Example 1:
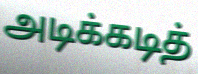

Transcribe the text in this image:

அடிக்கடித்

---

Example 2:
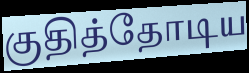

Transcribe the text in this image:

குதித்தோடிய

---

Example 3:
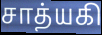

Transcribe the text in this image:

சாத்யகி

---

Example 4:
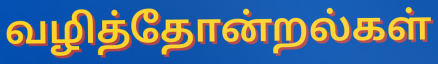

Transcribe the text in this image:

வழித்தோன்றல்கள்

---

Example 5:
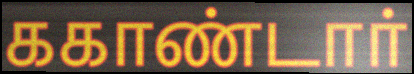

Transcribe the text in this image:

ககாண்டார்